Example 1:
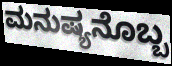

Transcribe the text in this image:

ಮನುಷ್ಯನೊಬ್ಬ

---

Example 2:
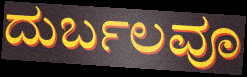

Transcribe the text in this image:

ದುರ್ಬಲವೂ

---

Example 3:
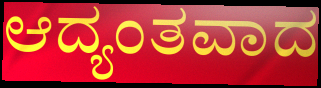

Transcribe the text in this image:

ಆದ್ಯಂತವಾದ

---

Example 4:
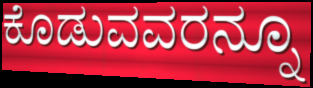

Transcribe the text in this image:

ಕೊಡುವವರನ್ನೂ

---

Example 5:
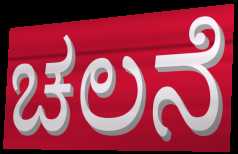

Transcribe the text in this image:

ಚಲನೆ